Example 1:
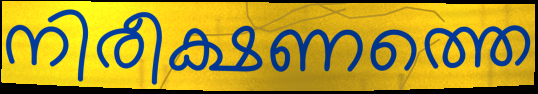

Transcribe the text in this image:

നിരീക്ഷണത്തെ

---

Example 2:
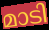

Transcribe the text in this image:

മാടി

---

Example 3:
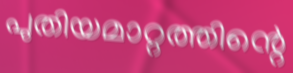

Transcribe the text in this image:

പുതിയമാറ്റത്തിന്റെ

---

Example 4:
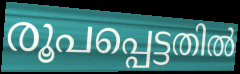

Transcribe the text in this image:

രൂപപ്പെട്ടതിൽ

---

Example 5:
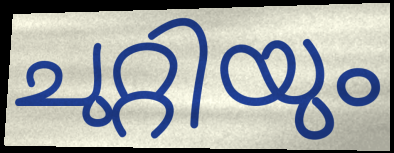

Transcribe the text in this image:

ചുറ്റിയും